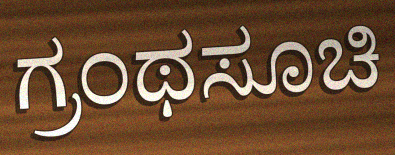
ಗ್ರಂಥಸೂಚಿ